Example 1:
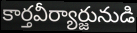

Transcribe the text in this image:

కార్తవీర్యార్జునుడి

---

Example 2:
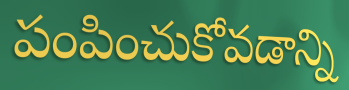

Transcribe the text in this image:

పంపించుకోవడాన్ని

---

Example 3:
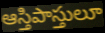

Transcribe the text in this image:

ఆస్తిపాస్తులూ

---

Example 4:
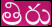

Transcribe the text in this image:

తిరు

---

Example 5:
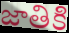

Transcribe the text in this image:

జాతికి